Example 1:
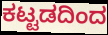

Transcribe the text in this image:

ಕಟ್ಟಡದಿಂದ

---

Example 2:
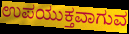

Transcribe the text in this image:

ಉಪಯುಕ್ತವಾಗುವ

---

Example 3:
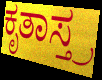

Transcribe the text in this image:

ಕೃತಾಸ್ತ್ರ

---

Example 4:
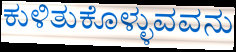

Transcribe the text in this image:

ಕುಳಿತುಕೊಳ್ಳುವವನು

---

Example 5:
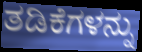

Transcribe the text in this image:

ತಡಿಕೆಗಳನ್ನು